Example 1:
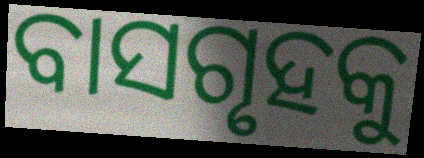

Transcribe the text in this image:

ବାସଗୃହକୁ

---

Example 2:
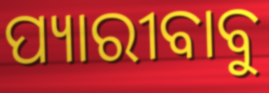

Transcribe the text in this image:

ପ୍ୟାରୀବାବୁ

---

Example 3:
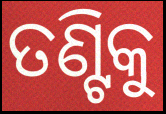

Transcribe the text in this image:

ତଣ୍ଟିକୁ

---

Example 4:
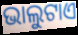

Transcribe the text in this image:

ଭାଲୁଟାଏ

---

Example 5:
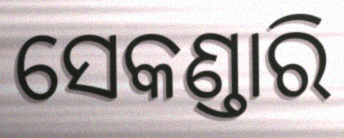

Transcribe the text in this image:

ସେକଣ୍ଡାରି